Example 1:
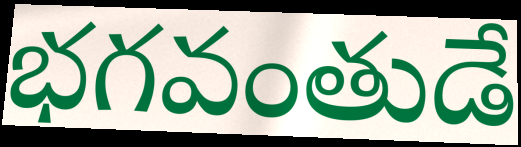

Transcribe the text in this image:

భగవంతుడే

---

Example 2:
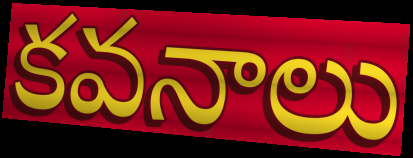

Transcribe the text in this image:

కవనాలు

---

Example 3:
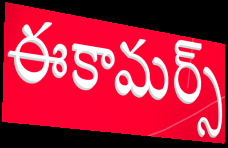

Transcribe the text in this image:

ఈకామర్స్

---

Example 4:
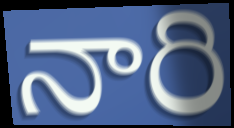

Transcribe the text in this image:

నారి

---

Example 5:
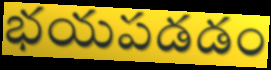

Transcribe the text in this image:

భయపడడం